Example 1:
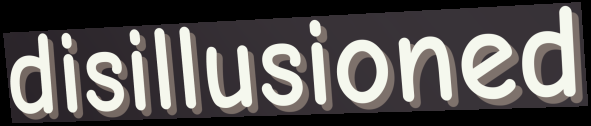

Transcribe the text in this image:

disillusioned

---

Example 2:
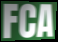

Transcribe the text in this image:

FCA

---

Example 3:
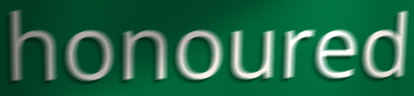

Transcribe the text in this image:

honoured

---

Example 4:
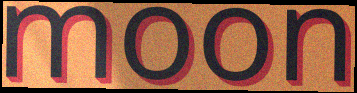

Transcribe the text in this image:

moon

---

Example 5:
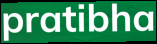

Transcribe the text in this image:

pratibha